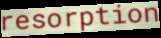
resorption